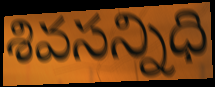
శివసన్నిధి